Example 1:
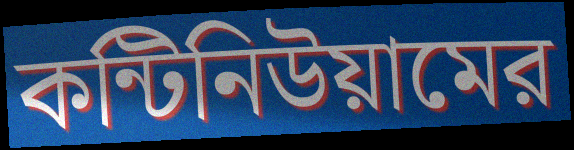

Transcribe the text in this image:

কন্টিনিউয়ামের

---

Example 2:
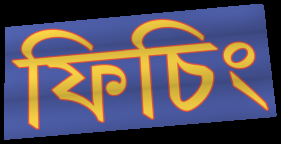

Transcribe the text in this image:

ফিচিং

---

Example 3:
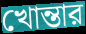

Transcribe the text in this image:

খোন্তার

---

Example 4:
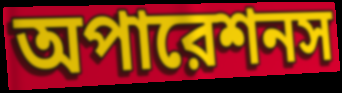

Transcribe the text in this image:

অপারেশনস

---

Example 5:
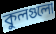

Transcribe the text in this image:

কুলগুলো